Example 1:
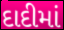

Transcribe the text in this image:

દાદીમાં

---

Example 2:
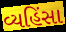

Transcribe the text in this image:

વ્યહિંસા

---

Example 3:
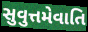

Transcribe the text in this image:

સુવુત્તમેવાતિ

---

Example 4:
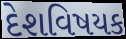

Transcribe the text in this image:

દેશવિષયક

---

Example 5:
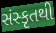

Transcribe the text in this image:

સંસ્કૃતથી